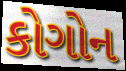
કોગોન